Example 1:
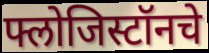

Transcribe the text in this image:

फ्लोजिस्टॉनचे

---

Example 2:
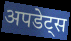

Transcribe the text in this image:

अपडेट्स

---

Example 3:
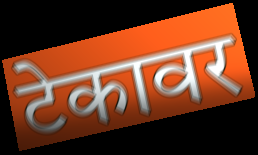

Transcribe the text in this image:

टेकावर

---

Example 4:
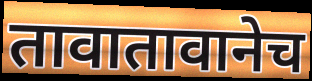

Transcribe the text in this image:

तावातावानेच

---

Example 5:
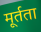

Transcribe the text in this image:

मूर्तता